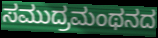
ಸಮುದ್ರಮಂಥನದ